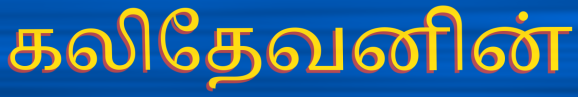
கலிதேவனின்